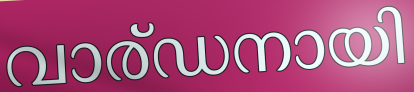
വാര്ഡനായി